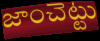
జాంచెట్టు